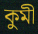
কুমী